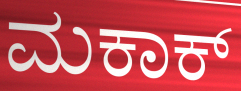
ಮಕಾಕ್